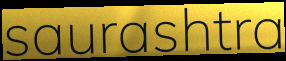
saurashtra